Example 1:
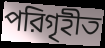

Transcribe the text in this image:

পরিগৃহীত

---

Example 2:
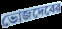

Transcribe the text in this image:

ভোজদেবের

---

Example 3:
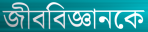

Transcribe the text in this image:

জীববিজ্ঞানকে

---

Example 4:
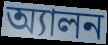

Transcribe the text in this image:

অ্যালন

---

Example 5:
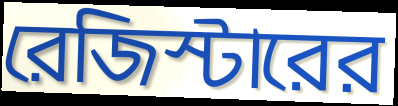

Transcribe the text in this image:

রেজিস্টারের